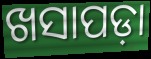
ଖସାପଡ଼ା